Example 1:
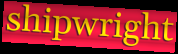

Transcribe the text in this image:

shipwright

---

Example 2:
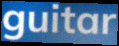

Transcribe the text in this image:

guitar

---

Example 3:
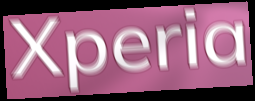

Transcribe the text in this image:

Xperia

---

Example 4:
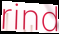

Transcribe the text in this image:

rind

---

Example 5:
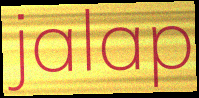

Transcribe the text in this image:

jalap